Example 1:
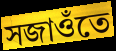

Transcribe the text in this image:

সজাওঁতে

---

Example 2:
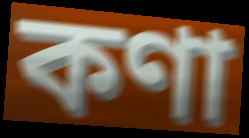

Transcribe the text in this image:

কণা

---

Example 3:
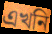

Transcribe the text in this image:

এখনি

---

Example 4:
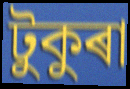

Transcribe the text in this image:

টুকুৰা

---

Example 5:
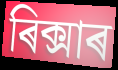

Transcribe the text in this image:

ৰিক্সাৰ